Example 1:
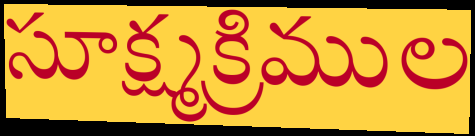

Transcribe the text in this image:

సూక్ష్మక్రిముల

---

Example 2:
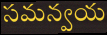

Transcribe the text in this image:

సమన్వయ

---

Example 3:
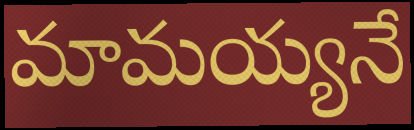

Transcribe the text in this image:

మామయ్యనే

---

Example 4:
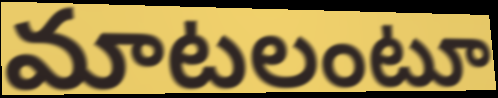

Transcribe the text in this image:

మాటలంటూ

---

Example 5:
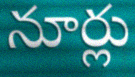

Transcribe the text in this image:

నూర్లు